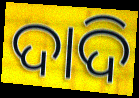
ଦାଦି